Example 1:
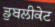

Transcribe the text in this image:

ਡੁਬਲੀਕੇਟ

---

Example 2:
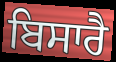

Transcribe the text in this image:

ਬਿਸਾਰੈ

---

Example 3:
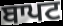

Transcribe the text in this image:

ਬਾਪਟ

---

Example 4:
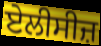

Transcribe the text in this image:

ਏਲੀਸੀਜ਼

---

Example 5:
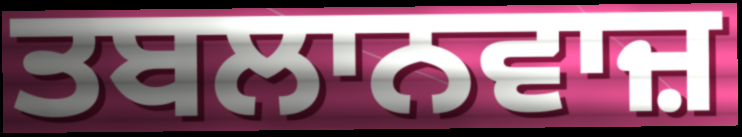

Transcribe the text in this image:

ਤਬਲਾਨਵਾਜ਼